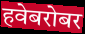
हवेबरोबर